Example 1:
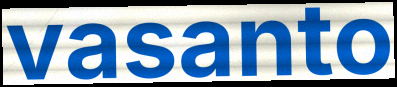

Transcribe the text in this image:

vasanto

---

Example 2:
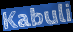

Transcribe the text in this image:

Kabuli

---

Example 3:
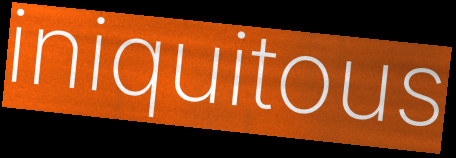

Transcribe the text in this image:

iniquitous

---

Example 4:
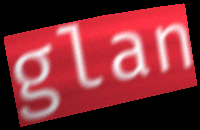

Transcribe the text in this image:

glan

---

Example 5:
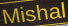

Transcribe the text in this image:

Mishal